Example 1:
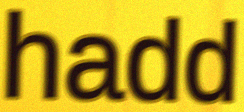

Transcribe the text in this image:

hadd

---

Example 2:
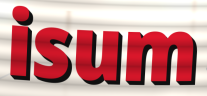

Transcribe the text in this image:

isum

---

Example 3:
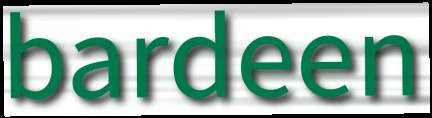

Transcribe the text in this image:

bardeen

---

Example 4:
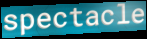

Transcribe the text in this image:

spectacle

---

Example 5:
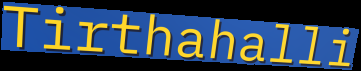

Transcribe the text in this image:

Tirthahalli